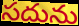
సదును